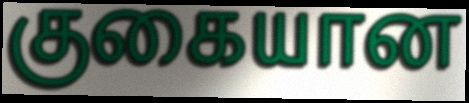
குகையான